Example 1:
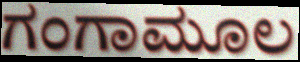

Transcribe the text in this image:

ಗಂಗಾಮೂಲ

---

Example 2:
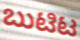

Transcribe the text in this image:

ಬುಟಿಟ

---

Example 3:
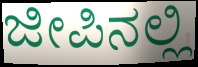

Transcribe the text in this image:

ಜೀಪಿನಲ್ಲಿ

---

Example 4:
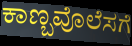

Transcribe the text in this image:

ಕಾಣ್ಬವೊಲೆಸಗೆ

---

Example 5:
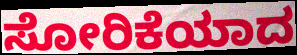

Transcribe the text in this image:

ಸೋರಿಕೆಯಾದ